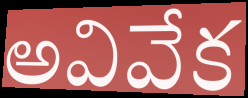
అవివేక